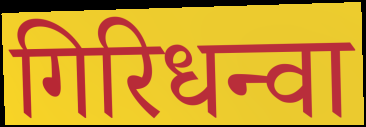
गिरिधन्वा